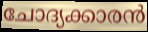
ചോദ്യക്കാരൻ